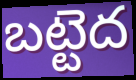
బట్టెద